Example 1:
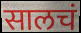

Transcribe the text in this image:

सालचं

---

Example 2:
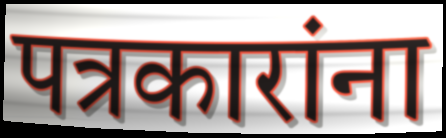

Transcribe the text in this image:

पत्रकारांना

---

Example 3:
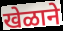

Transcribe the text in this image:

खेळाने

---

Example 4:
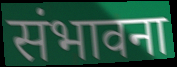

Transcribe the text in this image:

संभावना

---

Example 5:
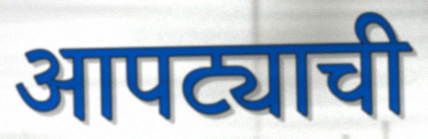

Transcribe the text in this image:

आपट्याची